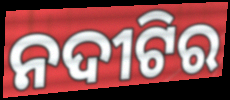
ନଦୀଟିର